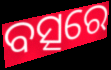
ବତ୍ସରେ